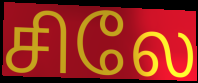
சிலே